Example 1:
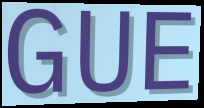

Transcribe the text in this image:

GUE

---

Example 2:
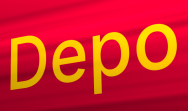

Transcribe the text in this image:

Depo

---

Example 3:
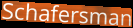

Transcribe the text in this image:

Schafersman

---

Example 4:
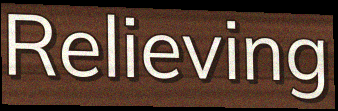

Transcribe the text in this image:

Relieving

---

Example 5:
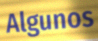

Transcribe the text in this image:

Algunos